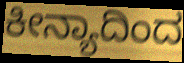
ಕೀನ್ಯಾದಿಂದ